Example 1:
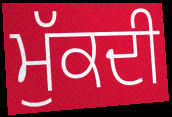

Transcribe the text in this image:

ਮੁੱਕਦੀ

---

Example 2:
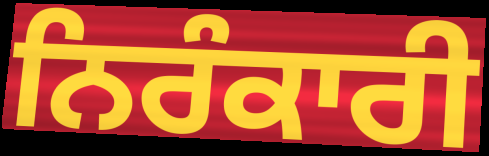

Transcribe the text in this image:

ਨਿਰੰਕਾਰੀ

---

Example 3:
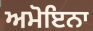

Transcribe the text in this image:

ਅਮੋਇਨਾ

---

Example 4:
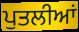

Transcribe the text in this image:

ਪੁਤਲੀਆਂ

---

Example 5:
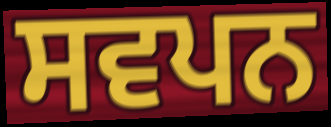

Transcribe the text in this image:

ਸਵਪਨ